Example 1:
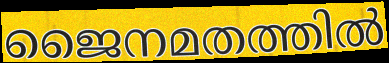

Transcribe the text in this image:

ജൈനമതത്തിൽ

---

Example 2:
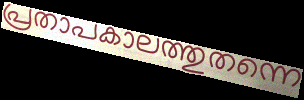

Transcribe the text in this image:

പ്രതാപകാലത്തുതന്നെ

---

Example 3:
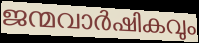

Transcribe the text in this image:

ജന്മവാർഷികവും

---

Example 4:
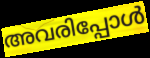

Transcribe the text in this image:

അവരിപ്പോൾ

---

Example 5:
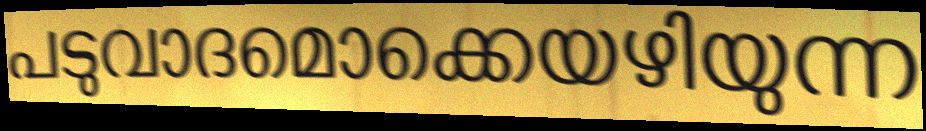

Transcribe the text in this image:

പടുവാദമൊക്കെയഴിയുന്ന